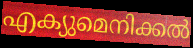
എക്യുമെനിക്കൽ